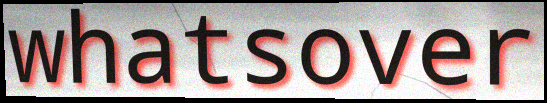
whatsover